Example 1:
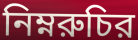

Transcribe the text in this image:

নিম্নরুচির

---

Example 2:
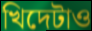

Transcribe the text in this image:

খিদেটাও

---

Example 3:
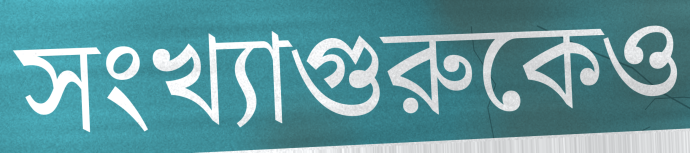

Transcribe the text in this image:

সংখ্যাগুরুকেও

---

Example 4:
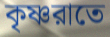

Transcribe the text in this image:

কৃষ্ণরাতে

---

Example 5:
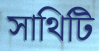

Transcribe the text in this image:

সাথিটি